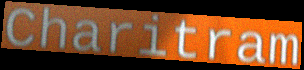
Charitram